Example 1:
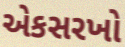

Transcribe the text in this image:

એકસરખો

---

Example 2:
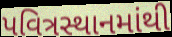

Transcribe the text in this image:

પવિત્રસ્થાનમાંથી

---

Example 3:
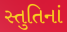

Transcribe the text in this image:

સ્તુતિનાં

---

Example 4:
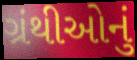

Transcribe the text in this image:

ગ્રંથીઓનું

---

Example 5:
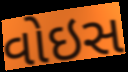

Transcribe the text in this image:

વોઇસ